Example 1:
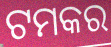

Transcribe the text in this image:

ଟମକର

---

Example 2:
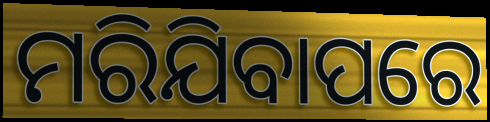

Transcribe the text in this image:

ମରିଯିବାପରେ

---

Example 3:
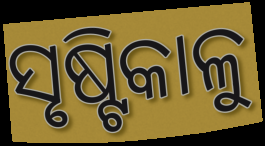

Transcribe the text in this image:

ସୃଷ୍ଟିକାଳୁ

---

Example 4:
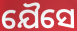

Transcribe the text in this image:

ଯୈସେ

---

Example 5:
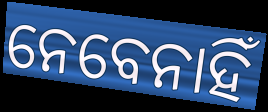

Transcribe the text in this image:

ନେବେନାହିଁ